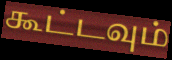
கூட்டவும்